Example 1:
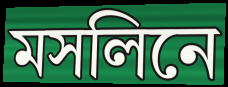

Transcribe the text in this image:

মসলিনে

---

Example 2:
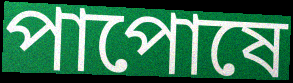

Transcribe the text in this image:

পাপোষে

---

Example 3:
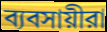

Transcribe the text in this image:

ব্যবসায়ীরা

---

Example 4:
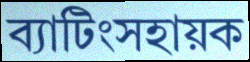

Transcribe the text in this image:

ব্যাটিংসহায়ক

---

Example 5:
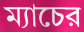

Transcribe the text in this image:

ম্যাচের